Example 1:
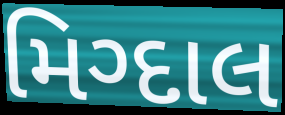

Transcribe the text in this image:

મિગ્દાલ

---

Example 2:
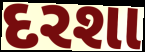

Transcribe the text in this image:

દરશા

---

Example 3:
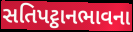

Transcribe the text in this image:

સતિપટ્ઠાનભાવના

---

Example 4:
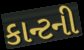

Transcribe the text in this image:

કાન્ટની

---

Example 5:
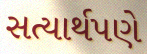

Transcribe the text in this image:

સત્યાર્થપણે